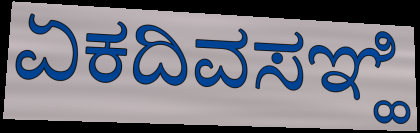
ಏಕದಿವಸಞ್ಹಿ